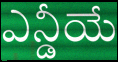
ఎన్డీయే